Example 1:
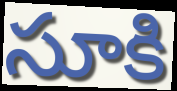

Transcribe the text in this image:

సూకి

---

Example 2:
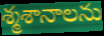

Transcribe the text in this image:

శ్మశానాలను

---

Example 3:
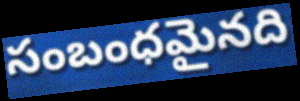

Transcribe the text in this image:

సంబంధమైనది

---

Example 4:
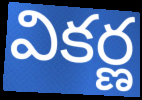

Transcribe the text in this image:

వికర్ణ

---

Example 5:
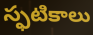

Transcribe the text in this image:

స్ఫటికాలు